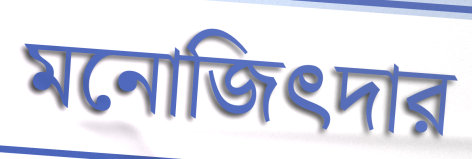
মনোজিৎদার